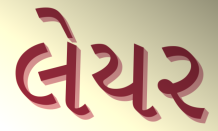
લેયર